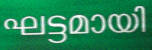
ഘട്ടമായി